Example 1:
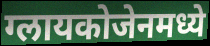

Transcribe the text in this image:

ग्लायकोजेनमध्ये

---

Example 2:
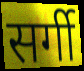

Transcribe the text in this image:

सर्गी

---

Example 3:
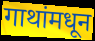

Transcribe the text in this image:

गाथांमधून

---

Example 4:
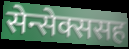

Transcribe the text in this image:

सेन्सेक्ससह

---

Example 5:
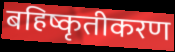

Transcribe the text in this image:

बहिष्कृतीकरण